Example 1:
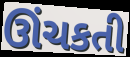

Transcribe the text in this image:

ઊંચકતી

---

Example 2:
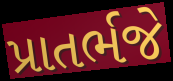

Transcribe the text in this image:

પ્રાતર્ભજે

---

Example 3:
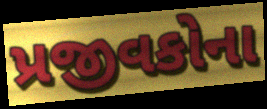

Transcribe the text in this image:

પ્રજીવકોના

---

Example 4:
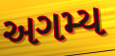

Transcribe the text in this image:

અગમ્ય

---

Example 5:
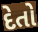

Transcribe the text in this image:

દેતો